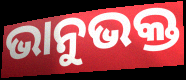
ଭାନୁଭକ୍ତ